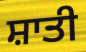
ਸ਼ਾਤੀ